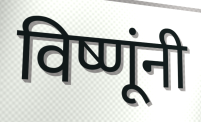
विष्णूंनी